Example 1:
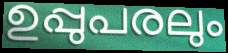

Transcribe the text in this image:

ഉപ്പുപരലും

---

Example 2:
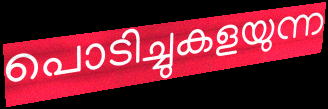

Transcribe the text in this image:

പൊടിച്ചുകളയുന്ന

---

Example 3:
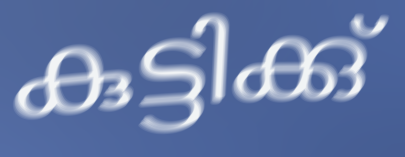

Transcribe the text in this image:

കുട്ടിക്കു്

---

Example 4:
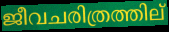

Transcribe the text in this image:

ജീവചരിത്രത്തില്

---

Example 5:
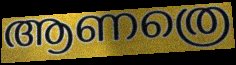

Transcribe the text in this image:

ആണത്രെ